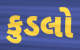
કુડલો